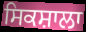
ਸਿਕਸ਼ਾਲਾ